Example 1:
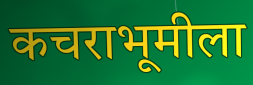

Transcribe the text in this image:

कचराभूमीला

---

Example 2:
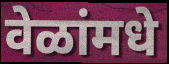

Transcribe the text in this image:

वेळांमधे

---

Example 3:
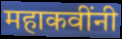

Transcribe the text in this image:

महाकवींनी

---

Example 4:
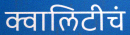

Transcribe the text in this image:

क्वालिटीचं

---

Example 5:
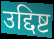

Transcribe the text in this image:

उद्दिष्ट